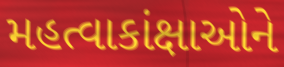
મહત્વાકાંક્ષાઓને